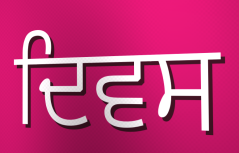
ਦਿਵਸ